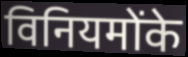
विनियमोंके